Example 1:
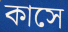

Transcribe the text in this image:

কাসে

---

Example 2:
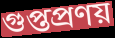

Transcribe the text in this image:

গুপ্তপ্রণয়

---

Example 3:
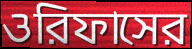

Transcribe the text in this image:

ওরিফাসের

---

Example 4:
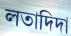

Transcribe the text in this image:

লতাদিদা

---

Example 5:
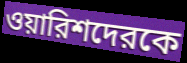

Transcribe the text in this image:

ওয়ারিশদেরকে